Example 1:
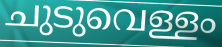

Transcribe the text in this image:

ചുടുവെള്ളം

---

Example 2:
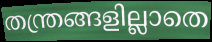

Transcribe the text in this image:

തന്ത്രങ്ങളില്ലാതെ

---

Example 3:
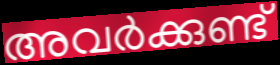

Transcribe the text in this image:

അവർക്കുണ്ട്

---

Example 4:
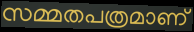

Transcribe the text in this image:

സമ്മതപത്രമാണ്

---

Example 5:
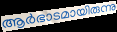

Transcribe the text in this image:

ആർഭാടമായിരുന്നു